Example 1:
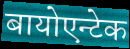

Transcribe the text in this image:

बायोएन्टेक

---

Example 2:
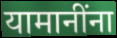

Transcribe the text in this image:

यामानींना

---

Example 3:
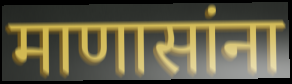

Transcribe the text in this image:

माणासांना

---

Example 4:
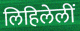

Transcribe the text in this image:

लिहिलेलीं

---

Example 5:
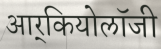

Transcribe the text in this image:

आर्कियोलॉजी